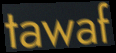
tawaf